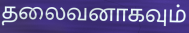
தலைவனாகவும்